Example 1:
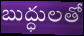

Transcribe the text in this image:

బుద్ధులతో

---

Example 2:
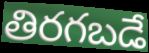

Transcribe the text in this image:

తిరగబడే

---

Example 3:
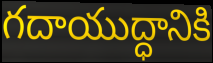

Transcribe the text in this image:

గదాయుద్ధానికి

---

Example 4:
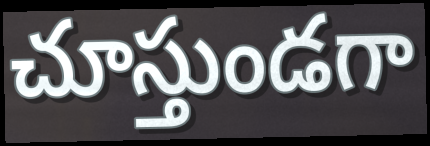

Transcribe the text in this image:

చూస్తుండగా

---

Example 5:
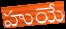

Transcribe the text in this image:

హుయే